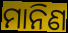
ମାନିଣ